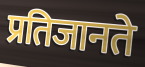
प्रतिजानते